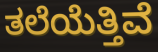
ತಲೆಯೆತ್ತಿವೆ